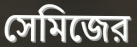
সেমিজের